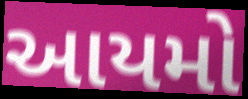
આયમો